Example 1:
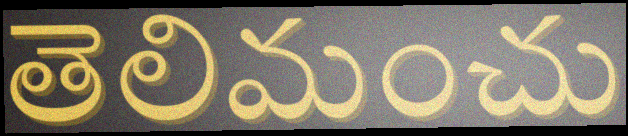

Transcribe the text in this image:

తెలిమంచు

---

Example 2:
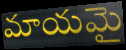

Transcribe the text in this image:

మాయమై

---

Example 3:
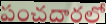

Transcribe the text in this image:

పంచదారలో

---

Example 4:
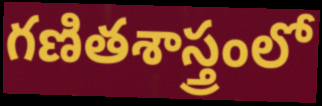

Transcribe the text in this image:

గణితశాస్త్రంలో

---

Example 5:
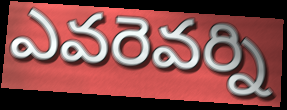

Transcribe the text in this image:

ఎవరెవర్ని